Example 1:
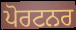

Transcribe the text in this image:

ਪੋਰਟਨਰ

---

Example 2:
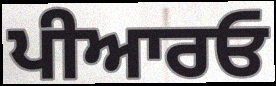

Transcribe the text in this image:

ਪੀਆਰਓ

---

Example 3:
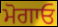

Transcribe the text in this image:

ਮੋਗਾਓ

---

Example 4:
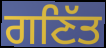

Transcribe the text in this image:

ਗਣਿੱਤ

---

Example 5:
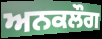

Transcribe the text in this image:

ਅਨਕਲੌਗ